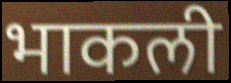
भाकली